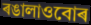
ৰঙালাওবোৰ